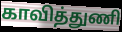
காவித்துணி